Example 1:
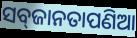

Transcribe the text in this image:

ସବ୍‌ଜାନତାପଣିଆ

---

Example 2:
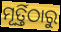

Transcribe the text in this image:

ମୂର୍ତ୍ତିଠାରୁ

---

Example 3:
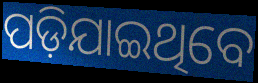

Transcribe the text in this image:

ପଡ଼ିଯାଇଥିବେ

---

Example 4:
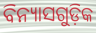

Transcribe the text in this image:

ବିନ୍ୟାସଗୁଡ଼ିକ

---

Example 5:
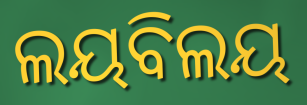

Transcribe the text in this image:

ଲୟବିଲୟ